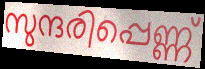
സുന്ദരിപ്പെണ്ണ്